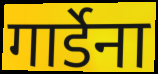
गार्डेना